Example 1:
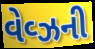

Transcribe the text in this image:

વેવ્ઝની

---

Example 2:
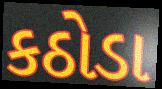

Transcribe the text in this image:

કઠોડા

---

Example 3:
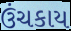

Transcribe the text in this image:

ઉંચકાય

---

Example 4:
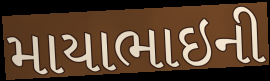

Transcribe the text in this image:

માયાભાઇની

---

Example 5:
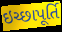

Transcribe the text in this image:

ઇચ્છાપૂર્તિ